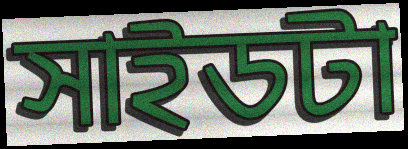
সাইডটা